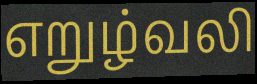
எறுழ்வலி